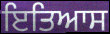
ਇਤਿਆਸ